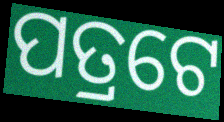
ପତ୍ରଟେ